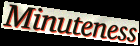
Minuteness